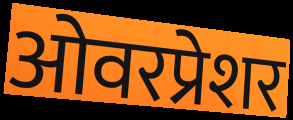
ओवरप्रेशर